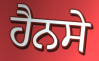
ਹੈਨਸੇ